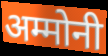
अम्मोनी